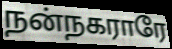
நன்நகராரே